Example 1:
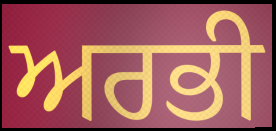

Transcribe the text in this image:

ਅਰਭੀ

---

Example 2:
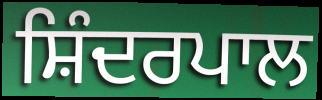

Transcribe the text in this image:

ਸ਼ਿੰਦਰਪਾਲ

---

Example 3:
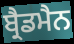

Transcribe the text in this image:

ਬ੍ਰੈਡਮੈਨ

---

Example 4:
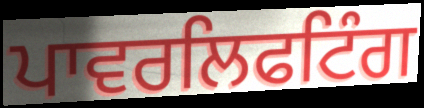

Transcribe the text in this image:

ਪਾਵਰਲਿਫਟਿੰਗ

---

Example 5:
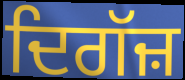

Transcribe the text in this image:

ਦਿਗੱਜ਼